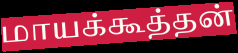
மாயக்கூத்தன்